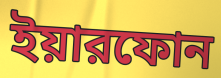
ইয়ারফোন